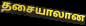
தசையாலான